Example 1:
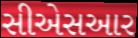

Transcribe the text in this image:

સીએસઆર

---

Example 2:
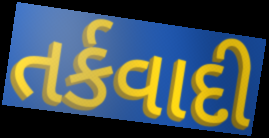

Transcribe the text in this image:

તર્કવાદી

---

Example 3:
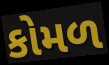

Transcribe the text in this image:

કોમળ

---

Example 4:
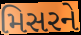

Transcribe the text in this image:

મિસરને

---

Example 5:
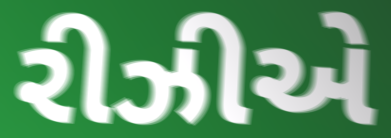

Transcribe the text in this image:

રીઝીએ